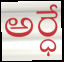
అర్ధే